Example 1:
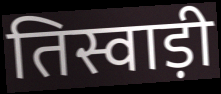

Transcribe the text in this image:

तिस्वाड़ी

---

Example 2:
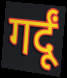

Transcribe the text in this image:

गर्दूं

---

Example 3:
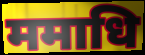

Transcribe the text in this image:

ममाधि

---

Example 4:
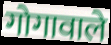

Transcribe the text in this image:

गोगावाले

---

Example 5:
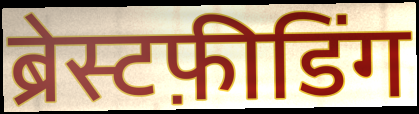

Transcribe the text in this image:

ब्रेस्टफ़ीडिंग